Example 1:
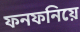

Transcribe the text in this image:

ফনফনিয়ে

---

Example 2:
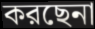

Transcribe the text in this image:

করছেনা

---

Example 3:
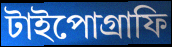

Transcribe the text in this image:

টাইপোগ্রাফি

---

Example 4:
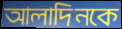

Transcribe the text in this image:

আলাদিনকে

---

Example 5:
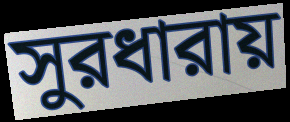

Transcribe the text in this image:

সুরধারায়